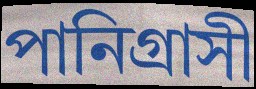
পানিগ্রাসী